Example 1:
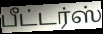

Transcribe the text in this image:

பீட்டர்ஸ்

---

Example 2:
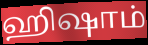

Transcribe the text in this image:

ஹிஷாம்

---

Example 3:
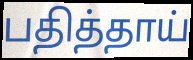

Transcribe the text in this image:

பதித்தாய்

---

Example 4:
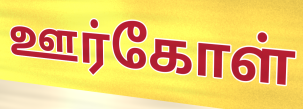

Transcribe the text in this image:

ஊர்கோள்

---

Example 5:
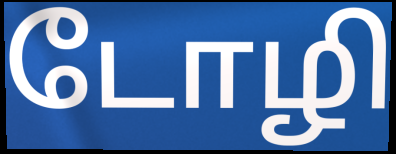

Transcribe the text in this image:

டோழி